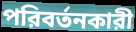
পরিবর্তনকারী